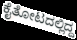
ಕೈತೋಟದಲ್ಲಿದ್ದ